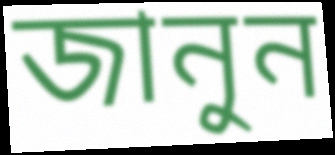
জানুন